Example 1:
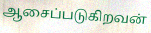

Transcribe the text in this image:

ஆசைப்படுகிறவன்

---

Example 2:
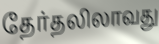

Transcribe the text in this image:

தேர்தலிலாவது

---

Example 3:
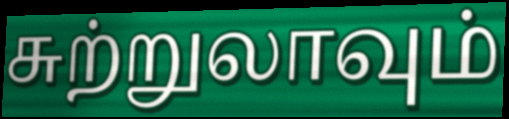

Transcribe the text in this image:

சுற்றுலாவும்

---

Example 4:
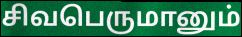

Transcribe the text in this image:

சிவபெருமானும்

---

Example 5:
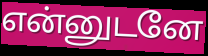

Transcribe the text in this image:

என்னுடனே